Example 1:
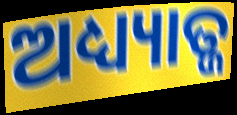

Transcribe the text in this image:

ଅଧ୍ୟ୍ୟାତ୍ଜ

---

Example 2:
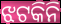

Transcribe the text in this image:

ଝଟକିନି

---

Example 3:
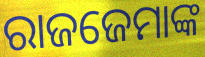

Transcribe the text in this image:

ରାଜଜେମାଙ୍କ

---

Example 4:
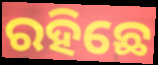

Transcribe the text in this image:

ରହିଛେ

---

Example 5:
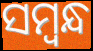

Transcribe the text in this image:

ସମ୍ୱନ୍ଧ